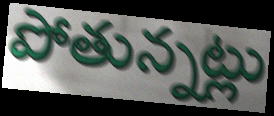
పోతున్నట్లు